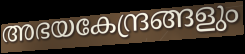
അഭയകേന്ദ്രങ്ങളും